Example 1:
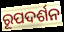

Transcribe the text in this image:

ରୂପଦର୍ଶନ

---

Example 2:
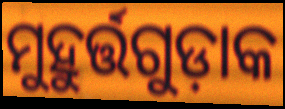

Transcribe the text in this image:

ମୁହୁର୍ତ୍ତଗୁଡ଼ାକ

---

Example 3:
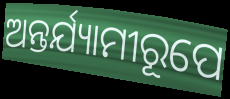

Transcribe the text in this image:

ଅନ୍ତର୍ଯ୍ୟାମୀରୂପେ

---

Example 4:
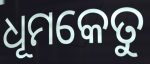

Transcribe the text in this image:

ଧୂମକେତୁ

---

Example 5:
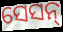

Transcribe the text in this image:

ସେସନ୍